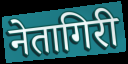
नेतागिरी